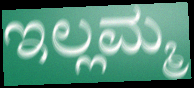
ಇಲ್ಲಮ್ಮ